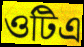
ওটিএ